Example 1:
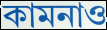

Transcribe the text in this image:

কামনাও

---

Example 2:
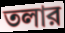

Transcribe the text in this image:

তলার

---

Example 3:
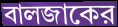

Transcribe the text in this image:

বালজাকের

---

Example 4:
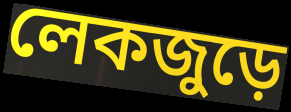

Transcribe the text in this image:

লেকজুড়ে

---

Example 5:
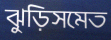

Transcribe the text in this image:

ঝুড়িসমেত